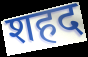
शहद